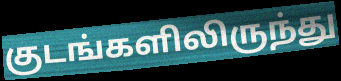
குடங்களிலிருந்து